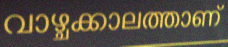
വാഴ്ചക്കാലത്താണ്